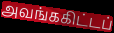
அவங்ககிட்டப்